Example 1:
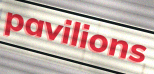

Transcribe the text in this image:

pavilions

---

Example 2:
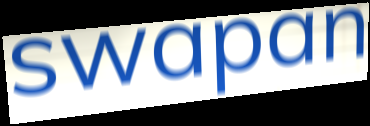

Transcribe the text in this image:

swapan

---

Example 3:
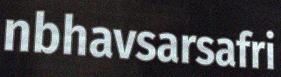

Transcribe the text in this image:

nbhavsarsafri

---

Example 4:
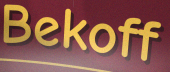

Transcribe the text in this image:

Bekoff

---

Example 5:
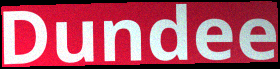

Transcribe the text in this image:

Dundee